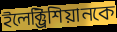
ইলেক্ট্রিশিয়ানকে